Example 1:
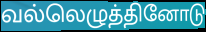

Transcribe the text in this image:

வல்லெழுத்தினோடு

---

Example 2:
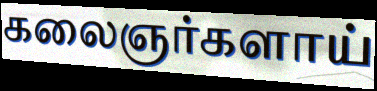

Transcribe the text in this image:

கலைஞர்களாய்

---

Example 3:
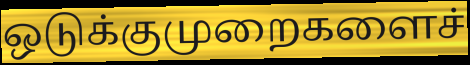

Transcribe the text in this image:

ஒடுக்குமுறைகளைச்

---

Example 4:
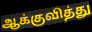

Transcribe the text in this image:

ஆக்குவித்து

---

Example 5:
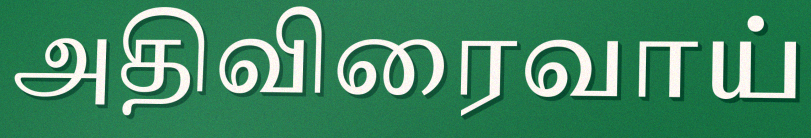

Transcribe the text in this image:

அதிவிரைவாய்